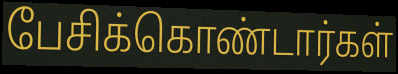
பேசிக்கொண்டார்கள்